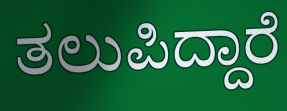
ತಲುಪಿದ್ದಾರೆ